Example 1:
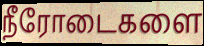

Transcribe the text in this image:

நீரோடைகளை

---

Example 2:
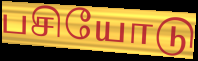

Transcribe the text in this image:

பசியோடு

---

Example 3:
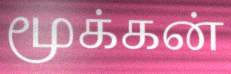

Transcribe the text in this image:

மூக்கன்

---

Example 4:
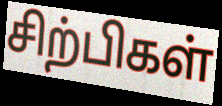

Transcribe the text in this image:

சிற்பிகள்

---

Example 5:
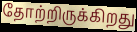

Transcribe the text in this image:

தோற்றிருக்கிறது